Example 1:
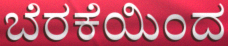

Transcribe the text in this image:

ಬೆರಕೆಯಿಂದ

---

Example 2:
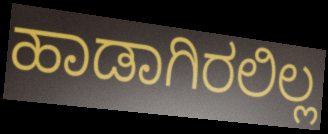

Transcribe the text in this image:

ಹಾಡಾಗಿರಲಿಲ್ಲ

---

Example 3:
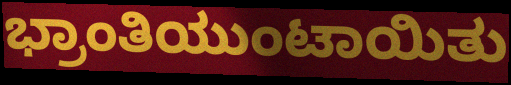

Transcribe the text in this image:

ಭ್ರಾಂತಿಯುಂಟಾಯಿತು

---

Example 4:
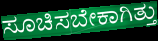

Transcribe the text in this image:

ಸೂಚಿಸಬೇಕಾಗಿತ್ತು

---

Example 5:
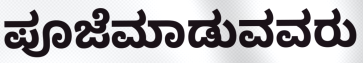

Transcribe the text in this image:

ಪೂಜೆಮಾಡುವವರು